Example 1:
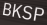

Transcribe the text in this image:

BKSP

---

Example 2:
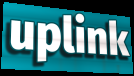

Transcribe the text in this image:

uplink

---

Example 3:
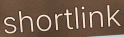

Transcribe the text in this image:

shortlink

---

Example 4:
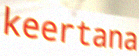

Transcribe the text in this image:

keertana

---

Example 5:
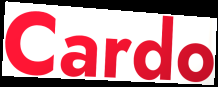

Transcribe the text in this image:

Cardo